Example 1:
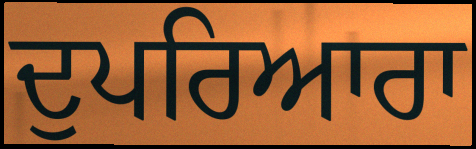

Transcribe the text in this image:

ਦੁਪਰਿਆਰਾ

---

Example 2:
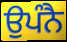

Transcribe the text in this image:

ਉਪੰਨੈ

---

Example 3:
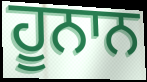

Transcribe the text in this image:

ਹੂਨਾਨ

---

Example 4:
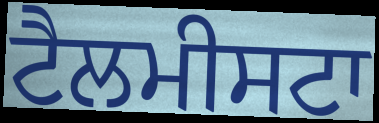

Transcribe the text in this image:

ਟੈਲਮੀਸਟਾ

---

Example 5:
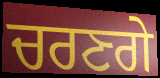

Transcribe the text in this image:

ਚਰਣਗੇ